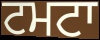
ਟਮਟਾ